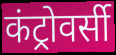
कंट्रोवर्सी